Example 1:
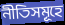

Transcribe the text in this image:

নীতিসমূহে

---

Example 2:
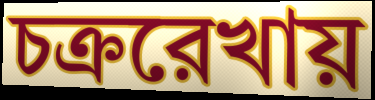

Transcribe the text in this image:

চক্ররেখায়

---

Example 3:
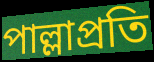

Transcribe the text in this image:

পাল্লাপ্রতি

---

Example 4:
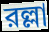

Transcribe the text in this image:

রল্লা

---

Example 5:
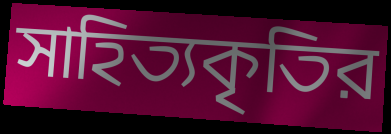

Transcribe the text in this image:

সাহিত্যকৃতির